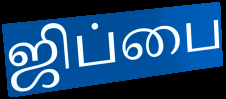
ஜிப்பை